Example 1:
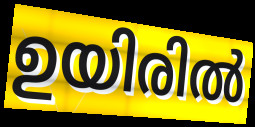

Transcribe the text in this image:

ഉയിരിൽ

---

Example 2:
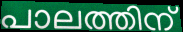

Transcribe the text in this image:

പാലത്തിന്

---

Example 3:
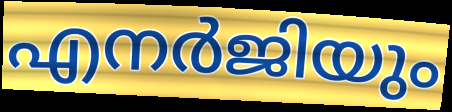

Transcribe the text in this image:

എനർജിയും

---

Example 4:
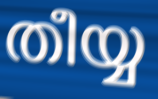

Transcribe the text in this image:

തീയ്യ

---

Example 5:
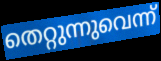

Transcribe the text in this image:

തെറ്റുന്നുവെന്ന്